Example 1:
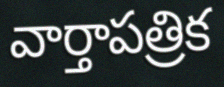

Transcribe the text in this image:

వార్తాపత్రిక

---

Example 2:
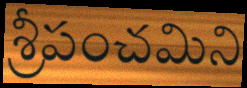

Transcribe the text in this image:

శ్రీపంచమిని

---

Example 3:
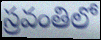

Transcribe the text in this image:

స్రవంతిలో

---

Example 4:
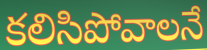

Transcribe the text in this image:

కలిసిపోవాలనే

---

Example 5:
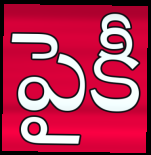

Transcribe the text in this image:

పైకీ